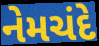
નેમચંદે